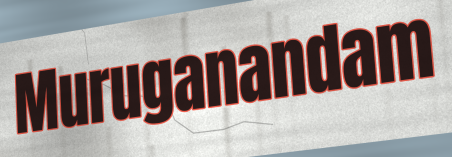
Muruganandam